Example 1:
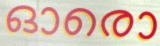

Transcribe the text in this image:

ഓരൊ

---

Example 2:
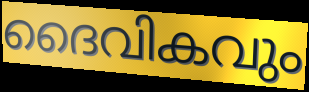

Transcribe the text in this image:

ദൈവികവും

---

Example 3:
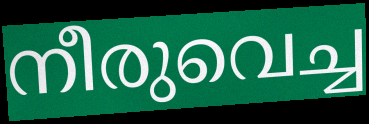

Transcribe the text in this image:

നീരുവെച്ച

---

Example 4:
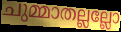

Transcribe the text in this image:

ചുമ്മാതല്ലല്ലോ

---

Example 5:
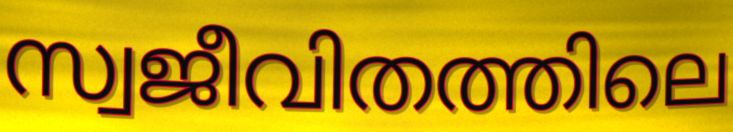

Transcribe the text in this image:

സ്വജീവിതത്തിലെ